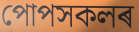
পোপসকলৰ